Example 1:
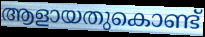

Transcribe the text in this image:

ആളായതുകൊണ്ട്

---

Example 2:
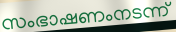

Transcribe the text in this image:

സംഭാഷണംനടന്ന്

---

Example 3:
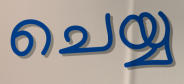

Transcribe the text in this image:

ചെയ്യ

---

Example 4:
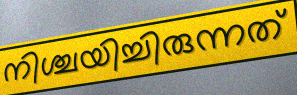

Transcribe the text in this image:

നിശ്ചയിച്ചിരുന്നത്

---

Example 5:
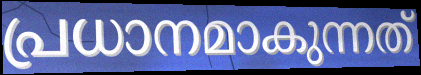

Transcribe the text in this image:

പ്രധാനമാകുന്നത്